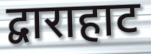
द्वाराहाट